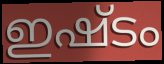
ഇഷ്ടം